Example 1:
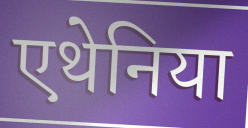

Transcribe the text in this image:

एथेनिया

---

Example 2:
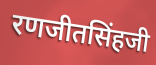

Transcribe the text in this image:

रणजीतसिंहजी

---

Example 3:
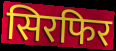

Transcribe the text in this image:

सिरफिर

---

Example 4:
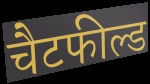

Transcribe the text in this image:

चैटफील्ड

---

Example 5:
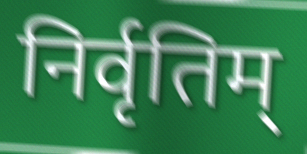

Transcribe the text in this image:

निर्वृतिम्